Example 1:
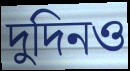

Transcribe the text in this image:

দুদিনও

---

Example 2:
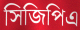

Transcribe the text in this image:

সিজিপিএ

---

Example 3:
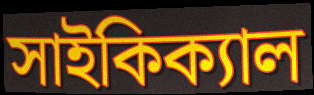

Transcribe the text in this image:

সাইকিক্যাল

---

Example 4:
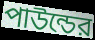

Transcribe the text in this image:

পাউন্ডের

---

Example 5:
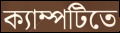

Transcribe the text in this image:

ক্যাম্পটিতে